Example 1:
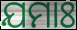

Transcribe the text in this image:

ଯମାଃ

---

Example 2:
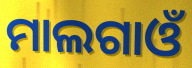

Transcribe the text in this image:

ମାଲଗାଓଁ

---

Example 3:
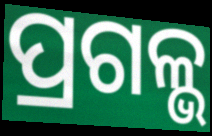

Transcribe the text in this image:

ପ୍ରଗଳ୍ଭ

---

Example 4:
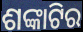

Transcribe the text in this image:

ଶଙ୍କାଟିର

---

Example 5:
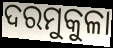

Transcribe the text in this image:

ଦରମୁକୁଳା